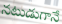
నటుడుగానే